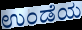
ಉಂಡೆಯ